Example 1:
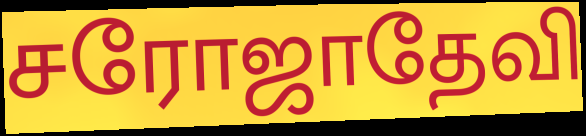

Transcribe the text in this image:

சரோஜாதேவி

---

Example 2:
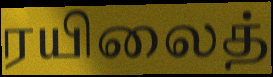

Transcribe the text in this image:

ரயிலைத்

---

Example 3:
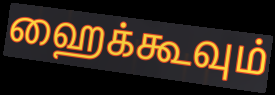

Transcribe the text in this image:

ஹைக்கூவும்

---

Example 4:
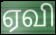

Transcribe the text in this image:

ஏவி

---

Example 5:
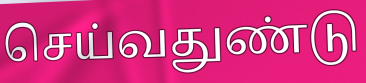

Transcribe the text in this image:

செய்வதுண்டு